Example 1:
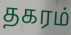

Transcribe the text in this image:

தகரம்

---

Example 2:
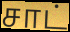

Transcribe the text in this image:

சாட்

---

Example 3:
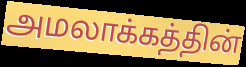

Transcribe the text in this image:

அமலாக்கத்தின்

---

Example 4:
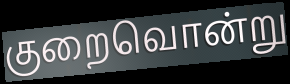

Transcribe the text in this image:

குறைவொன்று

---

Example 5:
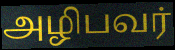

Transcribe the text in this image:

அழிபவர்